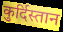
कुर्दिस्तान